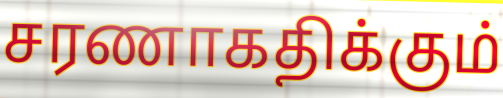
சரணாகதிக்கும்